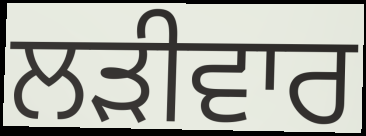
ਲੜੀਵਾਰ